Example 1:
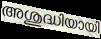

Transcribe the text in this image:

അശുദ്ധിയായി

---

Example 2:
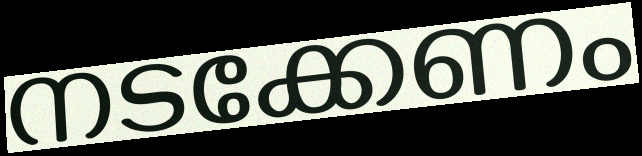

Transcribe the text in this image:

നടക്കേണം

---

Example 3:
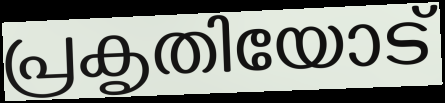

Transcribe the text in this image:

പ്രകൃതിയോട്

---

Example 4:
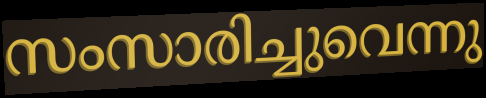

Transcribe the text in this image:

സംസാരിച്ചുവെന്നു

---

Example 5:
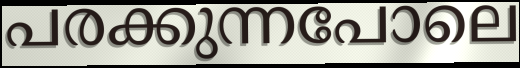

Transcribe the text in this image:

പരക്കുന്നപോലെ